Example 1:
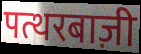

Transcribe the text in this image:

पत्थरबाज़ी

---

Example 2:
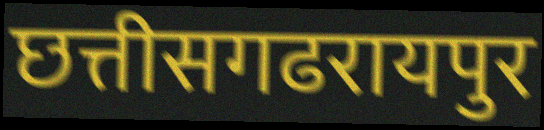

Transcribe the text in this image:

छत्तीसगढरायपुर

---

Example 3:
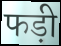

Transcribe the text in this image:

फड़ी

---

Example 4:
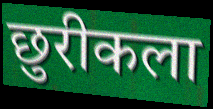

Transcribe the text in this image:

छुरीकला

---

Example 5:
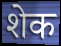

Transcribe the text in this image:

शेक